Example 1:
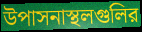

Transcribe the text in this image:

উপাসনাস্থলগুলির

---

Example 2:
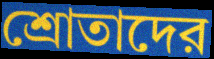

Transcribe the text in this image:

শ্রোতাদের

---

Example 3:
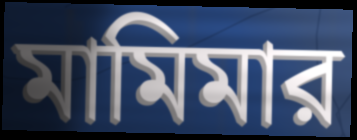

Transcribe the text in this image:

মামিমার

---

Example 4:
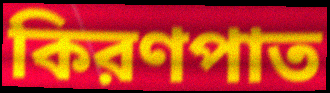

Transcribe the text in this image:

কিরণপাত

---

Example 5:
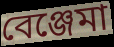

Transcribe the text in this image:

বেঞ্জেমা